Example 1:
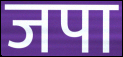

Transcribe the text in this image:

जपा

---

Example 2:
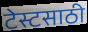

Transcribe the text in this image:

टेस्टसाठी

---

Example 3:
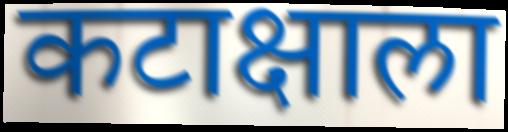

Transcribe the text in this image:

कटाक्षाला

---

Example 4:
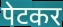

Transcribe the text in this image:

पेटकर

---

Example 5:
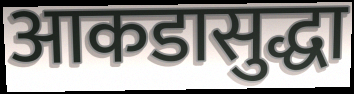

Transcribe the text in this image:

आकडासुद्धा